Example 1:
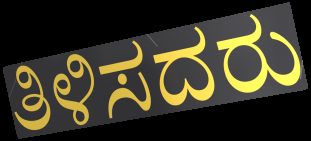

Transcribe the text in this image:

ತಿಳಿಸದರು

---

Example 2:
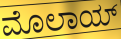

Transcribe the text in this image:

ಮೊಲಾಯ್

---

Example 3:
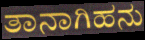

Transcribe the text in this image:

ತಾನಾಗಿಹನು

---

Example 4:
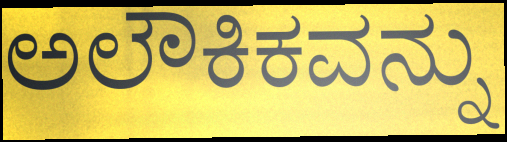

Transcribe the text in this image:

ಅಲೌಕಿಕವನ್ನು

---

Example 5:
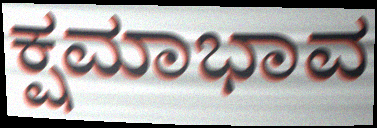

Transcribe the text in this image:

ಕ್ಷಮಾಭಾವ